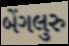
બેંગલુરુ